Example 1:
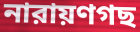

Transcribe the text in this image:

নারায়ণগছ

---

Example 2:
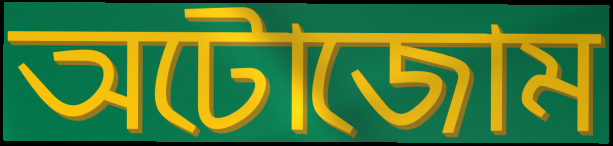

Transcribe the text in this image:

অটোজোম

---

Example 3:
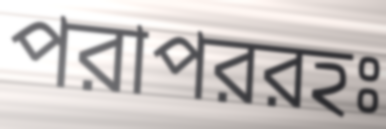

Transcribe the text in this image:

পরাপররহঃ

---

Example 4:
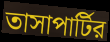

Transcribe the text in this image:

তাসাপার্টির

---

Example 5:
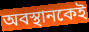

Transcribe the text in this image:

অবস্থানকেই